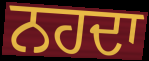
ਨਹਦਾ